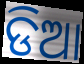
ଡିଆ